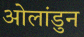
ओलांडुन